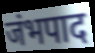
जंभपाद